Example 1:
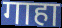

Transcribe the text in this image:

गाहा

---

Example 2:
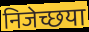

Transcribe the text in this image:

निजेच्छया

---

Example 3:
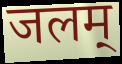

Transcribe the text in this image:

जलम्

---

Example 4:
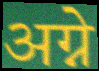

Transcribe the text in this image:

अग्ने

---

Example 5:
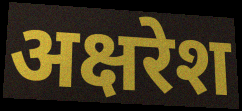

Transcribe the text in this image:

अक्षरेश